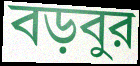
বড়বুর